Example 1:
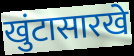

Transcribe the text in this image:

खुंटासारखे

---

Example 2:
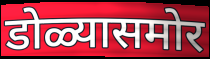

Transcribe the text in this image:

डोळ्यासमोर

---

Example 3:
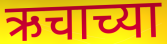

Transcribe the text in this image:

ऋचाच्या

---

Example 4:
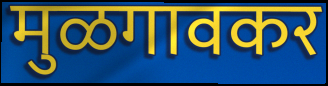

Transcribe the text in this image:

मुळगावकर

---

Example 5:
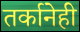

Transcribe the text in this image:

तर्कानेही